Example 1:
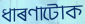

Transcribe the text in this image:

ধাৰণাটোক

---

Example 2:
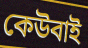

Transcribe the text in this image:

কেউবাই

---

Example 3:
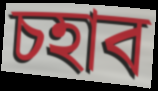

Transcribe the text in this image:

চহাব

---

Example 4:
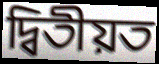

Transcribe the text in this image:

দ্বিতীয়ত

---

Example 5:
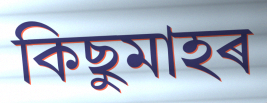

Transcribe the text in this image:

কিছুমাহৰ